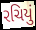
રચિયું